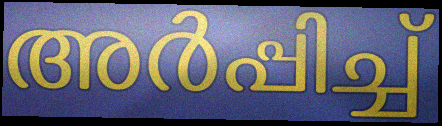
അർപ്പിച്ച്